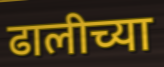
ढालीच्या